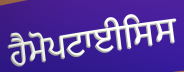
ਹੈਮੋਪਟਾਈਸਿਸ